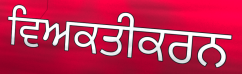
ਵਿਅਕਤੀਕਰਨ